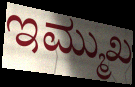
ಇಮ್ಮುಖ